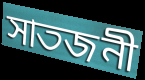
সাতজনী